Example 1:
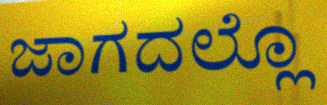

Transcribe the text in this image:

ಜಾಗದಲ್ಲೊ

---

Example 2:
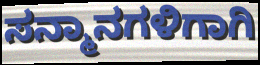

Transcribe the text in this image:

ಸನ್ಮಾನಗಳಿಗಾಗಿ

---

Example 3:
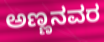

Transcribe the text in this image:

ಅಣ್ಣನವರ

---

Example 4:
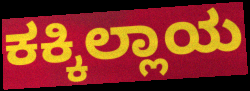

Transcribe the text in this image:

ಕಕ್ಕಿಲ್ಲಾಯ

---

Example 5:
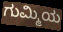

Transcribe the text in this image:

ಗುಮ್ಮಿಯ